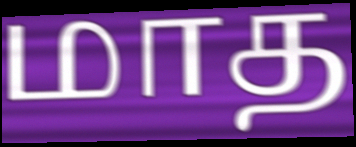
மாத